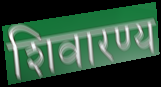
शिवारण्य